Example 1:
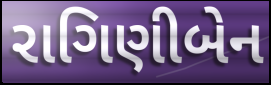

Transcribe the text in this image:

રાગિણીબેન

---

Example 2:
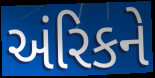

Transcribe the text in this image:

અંરિકને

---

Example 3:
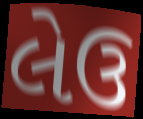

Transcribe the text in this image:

લેઉ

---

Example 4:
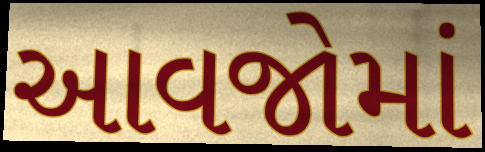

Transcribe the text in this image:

આવજોમાં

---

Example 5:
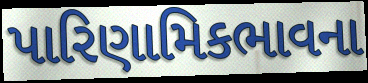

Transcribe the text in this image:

પારિણામિકભાવના